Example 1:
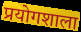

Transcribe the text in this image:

प्रयोगशाला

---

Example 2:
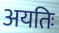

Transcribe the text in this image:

अयतिः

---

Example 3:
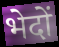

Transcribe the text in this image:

भेदों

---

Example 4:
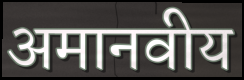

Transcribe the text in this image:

अमानवीय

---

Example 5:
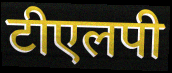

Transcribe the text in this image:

टीएलपी